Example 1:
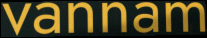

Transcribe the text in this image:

vannam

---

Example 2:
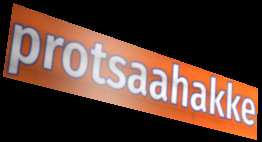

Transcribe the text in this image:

protsaahakke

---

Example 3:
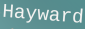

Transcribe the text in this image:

Hayward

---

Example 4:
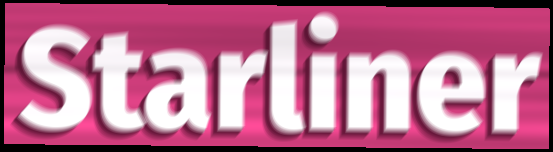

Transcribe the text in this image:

Starliner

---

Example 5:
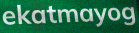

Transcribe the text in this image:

ekatmayog